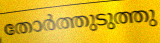
തോർത്തുടുത്തു